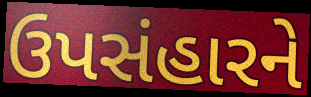
ઉપસંહારને